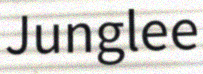
Junglee